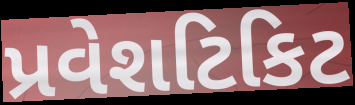
પ્રવેશટિકિટ